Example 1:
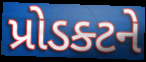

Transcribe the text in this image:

પ્રોડક્ટને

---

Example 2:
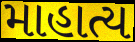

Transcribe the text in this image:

માહાત્ય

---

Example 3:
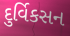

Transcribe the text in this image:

દુર્વિકસન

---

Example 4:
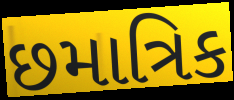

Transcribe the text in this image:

છમાત્રિક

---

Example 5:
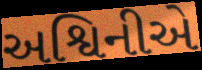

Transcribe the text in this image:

અશ્વિનીએ